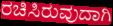
ರಚಿಸಿರುವುದಾಗಿ